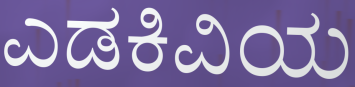
ಎಡಕಿವಿಯ